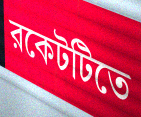
রকেটটিতে